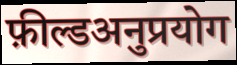
फ़ील्डअनुप्रयोग